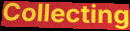
Collecting